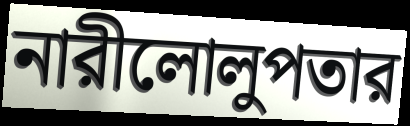
নারীলোলুপতার